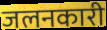
जलनकारी